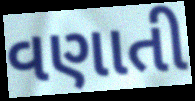
વણાતી